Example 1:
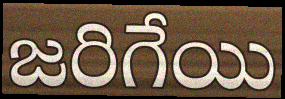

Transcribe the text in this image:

జరిగేయి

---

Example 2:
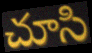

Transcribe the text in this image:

చూసి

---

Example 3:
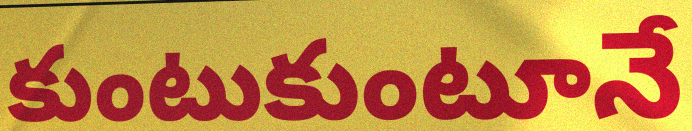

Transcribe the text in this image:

కుంటుకుంటూనే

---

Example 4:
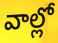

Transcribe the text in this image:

వాల్లో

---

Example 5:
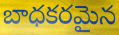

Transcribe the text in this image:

బాధకరమైన